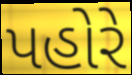
પહોરે